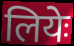
लियेः